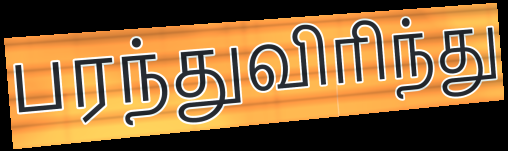
பரந்துவிரிந்து